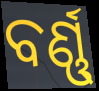
ବର୍ଣ୍ଣ୍